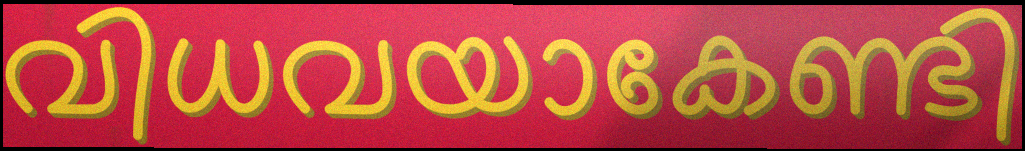
വിധവയാകേണ്ടി